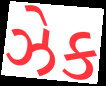
ઝેક